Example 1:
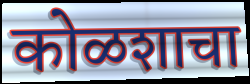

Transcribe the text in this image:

कोळशाचा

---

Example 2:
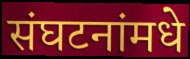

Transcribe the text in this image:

संघटनांमधे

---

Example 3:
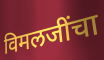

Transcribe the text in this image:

विमलजींचा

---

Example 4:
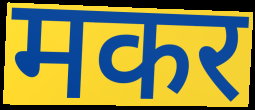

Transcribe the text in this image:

मकर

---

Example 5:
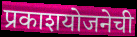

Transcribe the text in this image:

प्रकाशयोजनेची